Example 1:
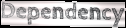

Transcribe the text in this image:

Dependency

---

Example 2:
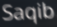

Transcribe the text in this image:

Saqib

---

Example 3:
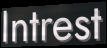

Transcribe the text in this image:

Intrest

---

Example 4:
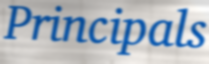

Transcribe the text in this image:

Principals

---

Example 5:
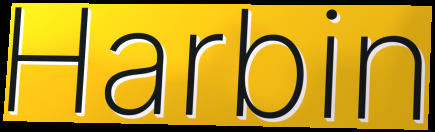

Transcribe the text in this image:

Harbin